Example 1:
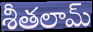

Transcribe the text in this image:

శీతలామ్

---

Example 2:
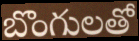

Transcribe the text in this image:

బొంగులతో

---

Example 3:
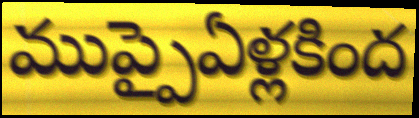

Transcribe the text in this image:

ముప్పైఏళ్లకింద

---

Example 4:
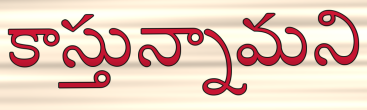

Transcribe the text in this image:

కాస్తున్నామని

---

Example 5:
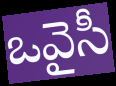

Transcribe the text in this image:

ఒవైసీ